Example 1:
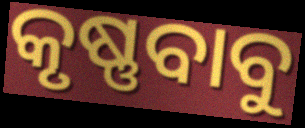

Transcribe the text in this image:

କୃଷ୍ଣବାବୁ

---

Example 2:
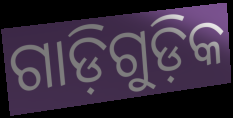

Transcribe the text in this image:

ଗାଡ଼ିଗୁଡ଼ିକ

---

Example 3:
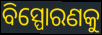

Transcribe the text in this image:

ବିସ୍ପୋରଣକୁ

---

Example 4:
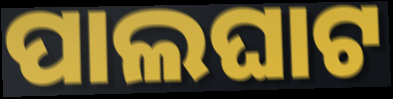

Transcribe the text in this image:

ପାଲଘାଟ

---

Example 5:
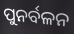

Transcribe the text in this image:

ପୁନର୍ବଳନ